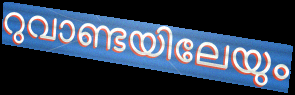
റുവാണ്ടയിലേയും